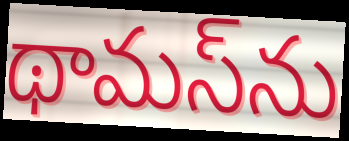
థామస్‌ను